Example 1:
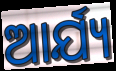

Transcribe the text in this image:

ଆର୍ଯ୍ୟ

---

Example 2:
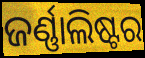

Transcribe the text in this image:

ଜର୍ଣ୍ଣାଲିଷ୍ଟର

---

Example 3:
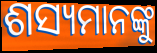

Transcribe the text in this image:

ଶସ୍ୟମାନଙ୍କୁ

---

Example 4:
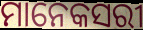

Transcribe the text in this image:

ମାନେକସରୀ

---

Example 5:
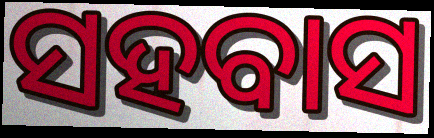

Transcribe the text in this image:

ସହବାସ